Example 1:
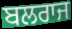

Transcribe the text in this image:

ਬਲਰਾਜ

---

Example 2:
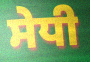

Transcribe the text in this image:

ਸੇਧੀ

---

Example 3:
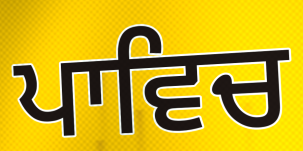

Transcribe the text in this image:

ਪਾਵਿਚ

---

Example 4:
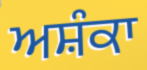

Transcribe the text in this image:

ਅਸ਼ੰਕਾ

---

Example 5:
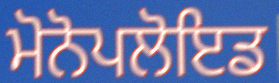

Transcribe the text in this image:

ਮੋਨੋਪਲੋਇਡ